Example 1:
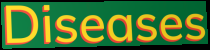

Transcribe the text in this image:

Diseases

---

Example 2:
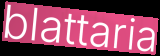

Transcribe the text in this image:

blattaria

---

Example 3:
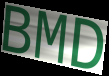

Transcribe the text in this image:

BMD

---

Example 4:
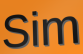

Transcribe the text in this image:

Sim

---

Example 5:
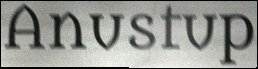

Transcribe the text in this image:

Anustup